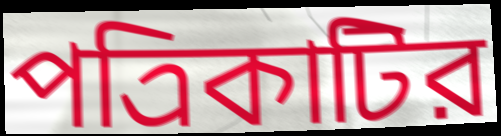
পত্রিকাটির